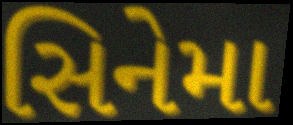
સિનેમા